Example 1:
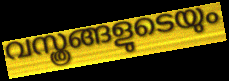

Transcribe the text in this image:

വസ്ത്രങ്ങളുടെയും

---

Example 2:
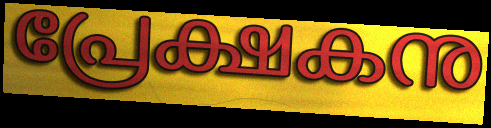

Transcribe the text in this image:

പ്രേക്ഷകനു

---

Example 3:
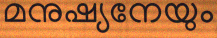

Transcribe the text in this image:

മനുഷ്യനേയും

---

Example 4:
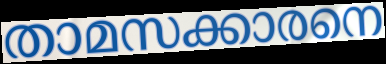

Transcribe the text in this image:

താമസക്കാരനെ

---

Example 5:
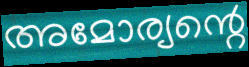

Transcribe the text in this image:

അമോര്യന്റെ